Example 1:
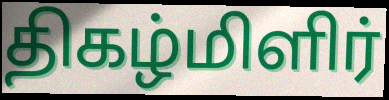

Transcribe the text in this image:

திகழ்மிளிர்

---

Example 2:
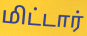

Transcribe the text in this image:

மிட்டார்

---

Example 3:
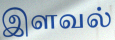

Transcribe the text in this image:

இளவல்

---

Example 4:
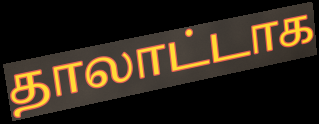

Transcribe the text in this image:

தாலாட்டாக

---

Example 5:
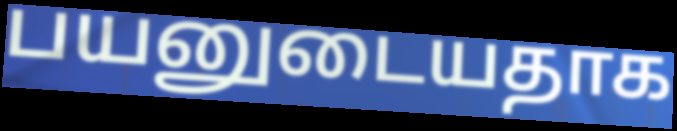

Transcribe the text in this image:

பயனுடையதாக